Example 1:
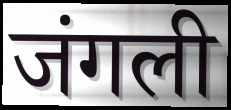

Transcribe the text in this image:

जंगली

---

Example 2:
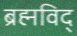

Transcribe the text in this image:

ब्रह्मविद्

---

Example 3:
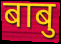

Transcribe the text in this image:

बाबु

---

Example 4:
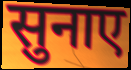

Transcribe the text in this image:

सुनाए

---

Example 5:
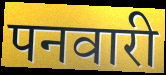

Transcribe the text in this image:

पनवारी